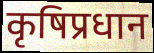
कृषिप्रधान